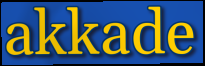
akkade